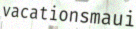
vacationsmaui